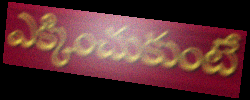
ఎక్కించుకుంటే